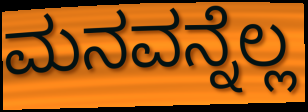
ಮನವನ್ನೆಲ್ಲ